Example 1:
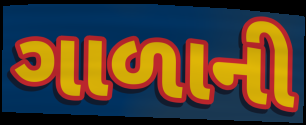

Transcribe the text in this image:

ગાળાની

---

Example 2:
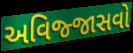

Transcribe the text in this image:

અવિજ્જાસવો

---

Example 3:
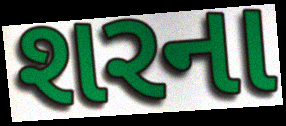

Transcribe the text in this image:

શરના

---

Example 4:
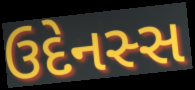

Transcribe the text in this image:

ઉદેનસ્સ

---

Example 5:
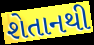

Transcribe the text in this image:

શેતાનથી